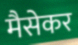
मैसेकर